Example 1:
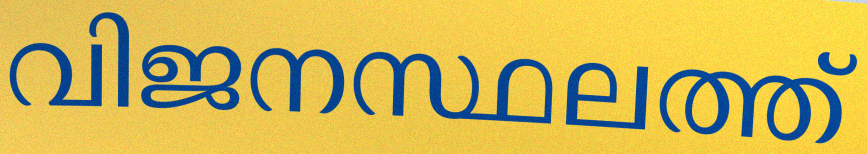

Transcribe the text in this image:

വിജനസ്ഥലത്ത്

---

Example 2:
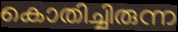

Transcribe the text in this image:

കൊതിച്ചിരുന്ന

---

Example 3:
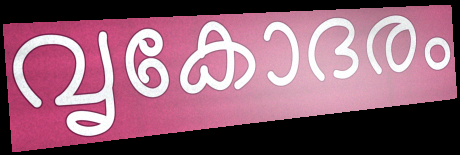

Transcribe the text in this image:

വൃകോദരം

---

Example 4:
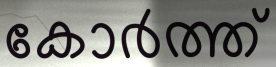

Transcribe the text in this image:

കോർത്ത്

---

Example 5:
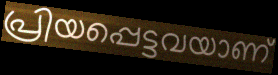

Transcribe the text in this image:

പ്രിയപ്പെട്ടവയാണ്